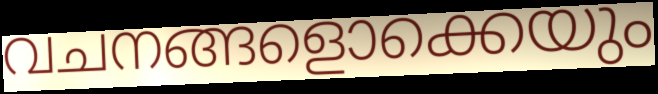
വചനങ്ങളൊക്കെയും